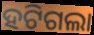
ହଟିଗଲା